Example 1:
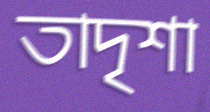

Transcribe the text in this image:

তাদৃশা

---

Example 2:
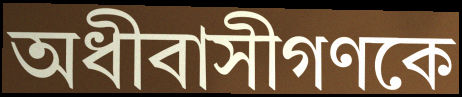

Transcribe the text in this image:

অধীবাসীগণকে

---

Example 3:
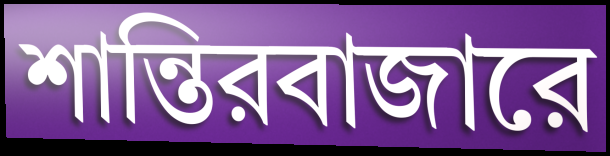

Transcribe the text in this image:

শান্তিরবাজারে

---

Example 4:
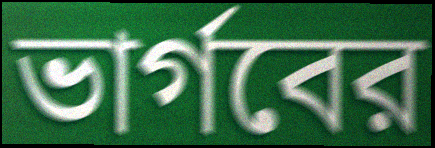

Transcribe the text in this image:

ভার্গবের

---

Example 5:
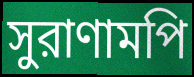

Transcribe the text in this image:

সুরাণামপি